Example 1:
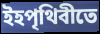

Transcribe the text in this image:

ইহপৃথিবীতে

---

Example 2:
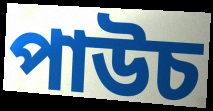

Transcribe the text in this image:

পাউচ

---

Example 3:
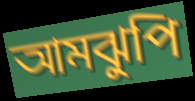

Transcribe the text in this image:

আমঝুপি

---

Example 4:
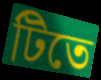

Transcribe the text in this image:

টিতে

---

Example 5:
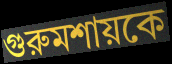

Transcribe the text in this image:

গুরুমশায়কে